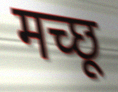
मच्छू